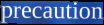
precaution